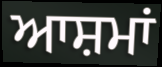
ਆਸ਼ਮਾਂ